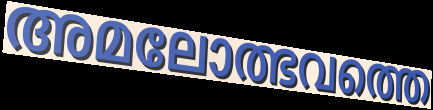
അമലോത്ഭവത്തെ